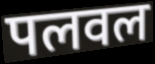
पलवल